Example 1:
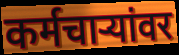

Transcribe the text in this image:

कर्मचाऱ्यांवर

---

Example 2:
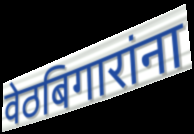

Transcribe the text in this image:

वेठबिगारांना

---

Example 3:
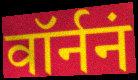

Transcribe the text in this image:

वॉर्ननं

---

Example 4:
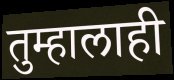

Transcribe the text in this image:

तुम्हालाही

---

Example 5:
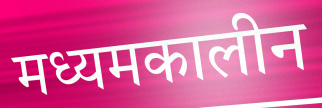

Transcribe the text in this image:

मध्यमकालीन